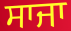
ਸਾਜਾ